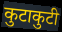
कुटाकुटी